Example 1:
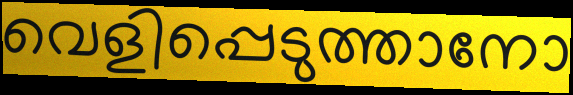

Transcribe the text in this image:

വെളിപ്പെടുത്താനോ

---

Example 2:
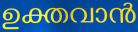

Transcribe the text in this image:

ഉക്തവാൻ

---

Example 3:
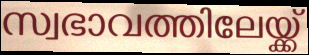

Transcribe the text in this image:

സ്വഭാവത്തിലേയ്ക്ക്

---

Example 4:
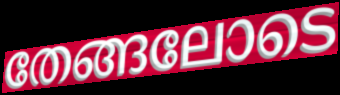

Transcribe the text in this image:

തേങ്ങലോടെ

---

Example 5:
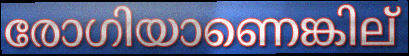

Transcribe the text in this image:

രോഗിയാണെങ്കില്